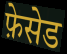
फ़ेसेड